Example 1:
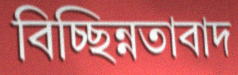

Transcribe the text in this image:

বিচ্ছিন্নতাবাদ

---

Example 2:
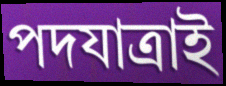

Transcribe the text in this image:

পদযাত্রাই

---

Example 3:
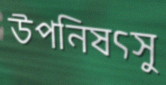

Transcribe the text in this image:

উপনিষৎসু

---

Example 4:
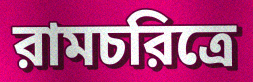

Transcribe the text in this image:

রামচরিত্রে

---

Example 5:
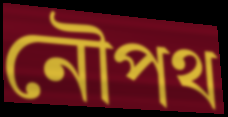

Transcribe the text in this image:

নৌপথ